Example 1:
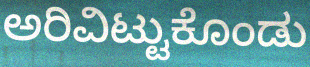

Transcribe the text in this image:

ಅರಿವಿಟ್ಟುಕೊಂಡು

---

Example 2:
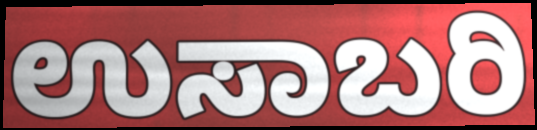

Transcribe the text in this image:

ಉಸಾಬರಿ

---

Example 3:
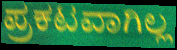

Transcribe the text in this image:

ಪ್ರಕಟವಾಗಿಲ್ಲ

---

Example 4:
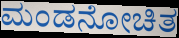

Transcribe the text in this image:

ಮಂಡನೋಚಿತ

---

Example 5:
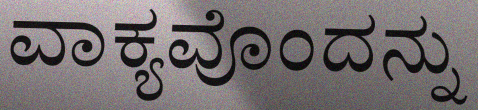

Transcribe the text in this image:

ವಾಕ್ಯವೊಂದನ್ನು